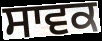
ਸਾਵਕ